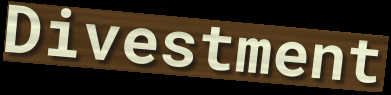
Divestment